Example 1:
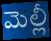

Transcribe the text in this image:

మెల్లీ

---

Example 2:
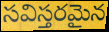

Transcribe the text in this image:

సవిస్తరమైన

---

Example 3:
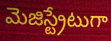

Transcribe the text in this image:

మెజిస్ట్రేటుగా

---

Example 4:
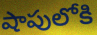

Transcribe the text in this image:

షాపులోకి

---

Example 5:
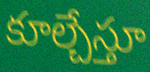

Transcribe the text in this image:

కూల్చేస్తూ